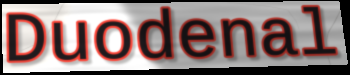
Duodenal